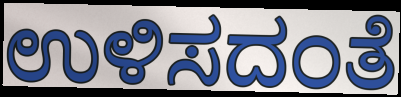
ಉಳಿಸದಂತೆ